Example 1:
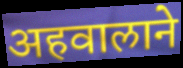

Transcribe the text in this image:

अहवालाने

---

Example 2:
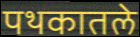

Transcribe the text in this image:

पथकातले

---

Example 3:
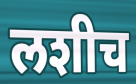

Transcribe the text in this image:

लशीच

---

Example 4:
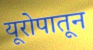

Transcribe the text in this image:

यूरोपातून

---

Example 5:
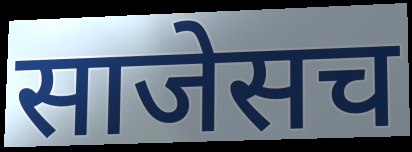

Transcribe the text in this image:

साजेसच